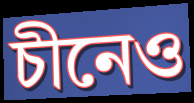
চীনেও